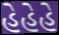
હેહેહે